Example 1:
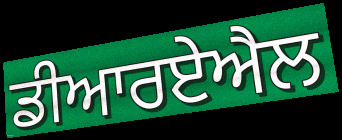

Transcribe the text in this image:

ਡੀਆਰਏਐਲ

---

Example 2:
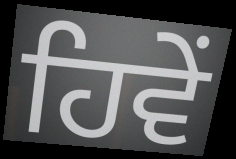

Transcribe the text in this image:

ਹਿਵੇਂ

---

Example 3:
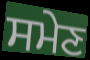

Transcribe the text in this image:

ਸਮੇਣ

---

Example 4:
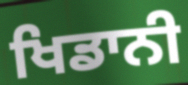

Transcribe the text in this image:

ਖਿਡਾਨੀ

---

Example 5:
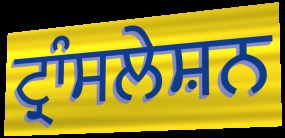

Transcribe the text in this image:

ਟ੍ਰਾੰਸਲੇਸ਼ਨ